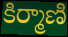
కిర్మాణి